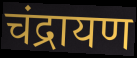
चंद्रायण